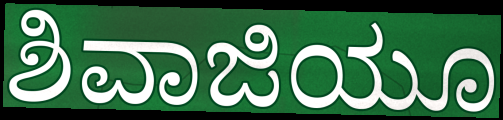
ಶಿವಾಜಿಯೂ